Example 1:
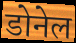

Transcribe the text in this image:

डोनेल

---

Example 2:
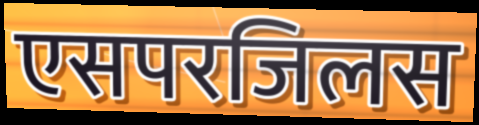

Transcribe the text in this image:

एसपरजिलस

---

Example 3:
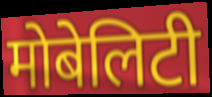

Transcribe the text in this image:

मोबेलिटी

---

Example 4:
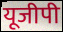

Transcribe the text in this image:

यूजीपी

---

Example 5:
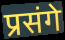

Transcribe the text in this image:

प्रसंगे